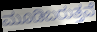
ಮೂಡಿಬರುತ್ತವೆ